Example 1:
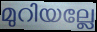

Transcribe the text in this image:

മുറിയല്ലേ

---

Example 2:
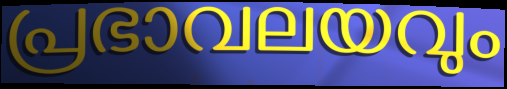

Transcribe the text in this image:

പ്രഭാവലയവും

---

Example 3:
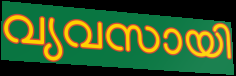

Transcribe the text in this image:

വ്യവസായി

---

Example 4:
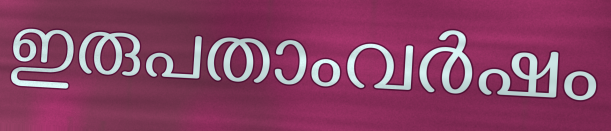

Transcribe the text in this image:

ഇരുപതാംവർഷം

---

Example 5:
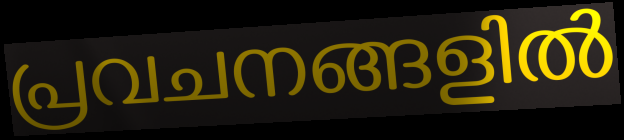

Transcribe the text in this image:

പ്രവചനങ്ങളിൽ